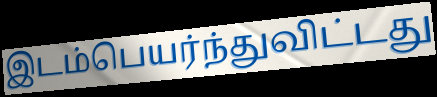
இடம்பெயர்ந்துவிட்டது